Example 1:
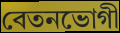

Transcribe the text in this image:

বেতনভোগী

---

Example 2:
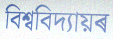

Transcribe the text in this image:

বিশ্ববিদ্যায়ৰ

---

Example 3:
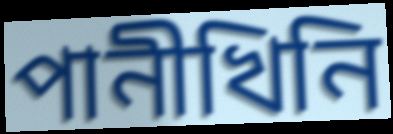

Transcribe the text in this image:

পানীখিনি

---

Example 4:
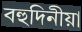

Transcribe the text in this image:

বহুদিনীয়া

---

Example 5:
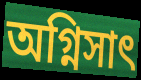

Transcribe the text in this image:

অগ্নিসাৎ